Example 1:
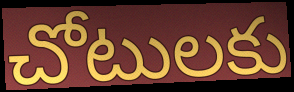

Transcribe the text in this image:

చోటులకు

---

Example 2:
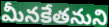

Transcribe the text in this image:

మీనకేతనుని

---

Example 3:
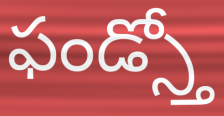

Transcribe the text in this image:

ఫండ్స్తో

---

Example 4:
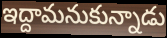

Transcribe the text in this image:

ఇద్దామనుకున్నాడు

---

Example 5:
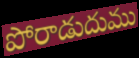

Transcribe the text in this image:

పోరాడుదుము